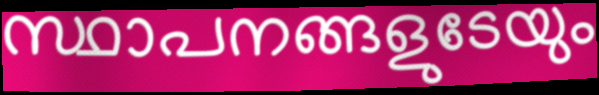
സ്ഥാപനങ്ങളുടേയും